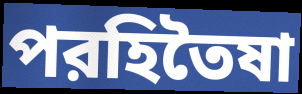
পরহিতৈষা